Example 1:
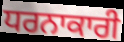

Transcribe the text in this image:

ਧਰਨਾਕਾਰੀ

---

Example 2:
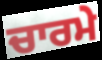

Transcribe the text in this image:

ਚਾਰਮੇ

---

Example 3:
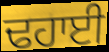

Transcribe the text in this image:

ਢਹਾਈ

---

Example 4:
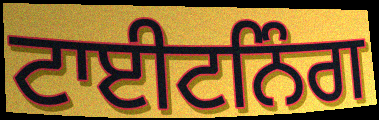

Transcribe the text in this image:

ਟਾਈਟਨਿੰਗ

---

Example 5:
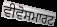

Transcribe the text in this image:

ਵੀਵੋਸਮਾਰਟ